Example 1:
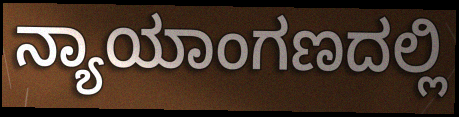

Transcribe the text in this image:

ನ್ಯಾಯಾಂಗಣದಲ್ಲಿ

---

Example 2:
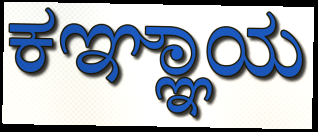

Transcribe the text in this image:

ಕಞ್ಞಾಯ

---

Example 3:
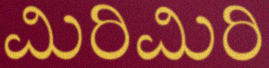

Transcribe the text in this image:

ಮಿರಿಮಿರಿ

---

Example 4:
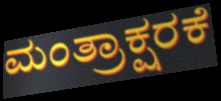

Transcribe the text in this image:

ಮಂತ್ರಾಕ್ಷರಕೆ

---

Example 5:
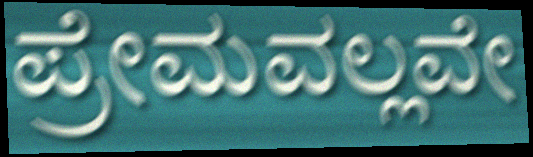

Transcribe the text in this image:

ಪ್ರೇಮವಲ್ಲವೇ